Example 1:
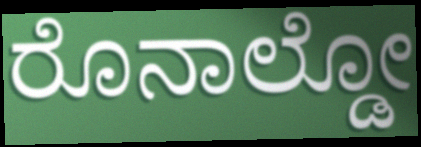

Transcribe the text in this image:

ರೊನಾಲ್ಡೋ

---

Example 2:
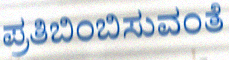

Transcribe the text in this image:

ಪ್ರತಿಬಿಂಬಿಸುವಂತೆ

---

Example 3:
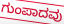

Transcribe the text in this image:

ಗುಂಪಾದವು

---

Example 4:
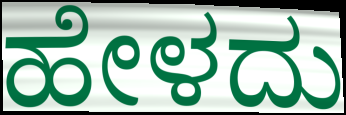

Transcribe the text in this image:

ಹೇಳದು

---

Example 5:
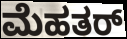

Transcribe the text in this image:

ಮೆಹತರ್